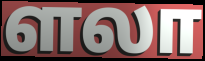
ளலா